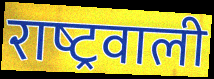
राष्ट्रवाली